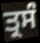
ਤ੍ਰਸੰ